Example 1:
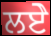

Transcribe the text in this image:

ਲਏੇ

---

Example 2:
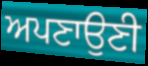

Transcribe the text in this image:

ਅਪਣਾਉਣੀ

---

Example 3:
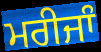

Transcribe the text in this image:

ਮਰੀਜਾੰ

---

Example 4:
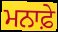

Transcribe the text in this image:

ਮਨਾਫ਼ੇ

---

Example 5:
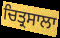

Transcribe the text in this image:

ਚਿਤ੍ਰਸਾਲਾ